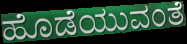
ಹೊಡೆಯುವಂತೆ